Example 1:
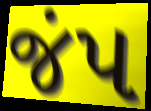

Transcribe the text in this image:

જંપ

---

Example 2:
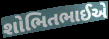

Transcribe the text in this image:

શોભિતભાઈએ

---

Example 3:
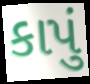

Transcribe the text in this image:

કાપું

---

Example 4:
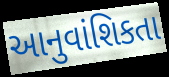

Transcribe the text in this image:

આનુવાંશિકતા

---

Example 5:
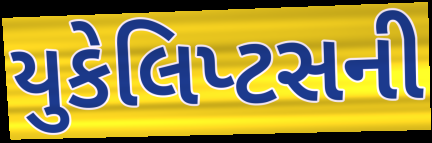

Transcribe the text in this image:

યુકેલિપ્ટસની